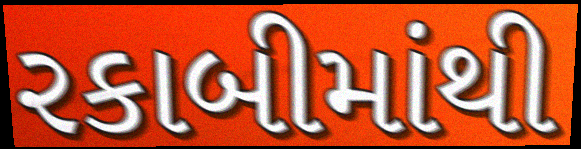
રકાબીમાંથી